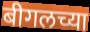
बीगलच्या